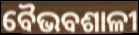
ବୈଭବଶାଳୀ